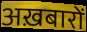
अख़बारों